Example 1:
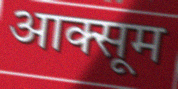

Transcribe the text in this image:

आक्सूम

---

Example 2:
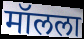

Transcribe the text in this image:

मॉलला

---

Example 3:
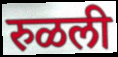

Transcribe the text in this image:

रुळली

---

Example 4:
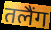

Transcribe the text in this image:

तलैंग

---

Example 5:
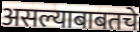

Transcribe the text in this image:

असल्याबाबतचे